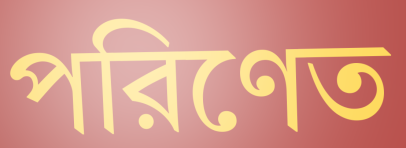
পরিণেত